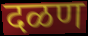
दळण